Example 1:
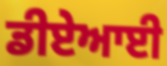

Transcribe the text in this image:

ਡੀਏਆਈ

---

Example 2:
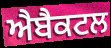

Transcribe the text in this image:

ਐਬੈਕਟਲ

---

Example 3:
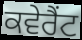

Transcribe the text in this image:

ਕਵੇਰੈਂਟ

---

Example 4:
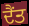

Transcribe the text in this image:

ਦੈਂਤ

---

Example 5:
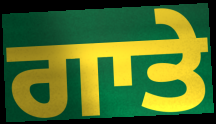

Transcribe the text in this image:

ਗਾਤੇ